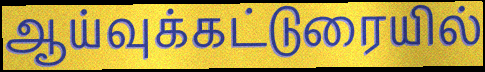
ஆய்வுக்கட்டுரையில்